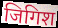
जिगिश